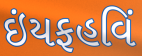
ઇંયફહવિં